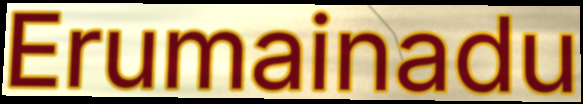
Erumainadu